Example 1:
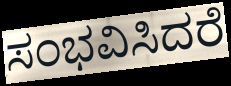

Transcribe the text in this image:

ಸಂಭವಿಸಿದರೆ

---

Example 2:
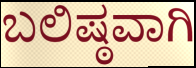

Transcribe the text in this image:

ಬಲಿಷ್ಠವಾಗಿ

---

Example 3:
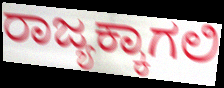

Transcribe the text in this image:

ರಾಜ್ಯಕ್ಕಾಗಲಿ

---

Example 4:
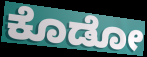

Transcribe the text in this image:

ಕೊಡೋ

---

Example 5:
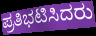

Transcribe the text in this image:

ಪ್ರತಿಭಟಿಸಿದರು